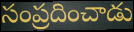
సంప్రదించాడు